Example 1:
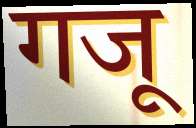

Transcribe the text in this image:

गजू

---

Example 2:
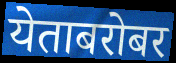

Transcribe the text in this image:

येताबरोबर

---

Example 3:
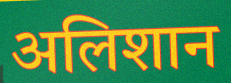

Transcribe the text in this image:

अलिशान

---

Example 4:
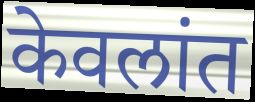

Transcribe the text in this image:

केवलांत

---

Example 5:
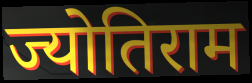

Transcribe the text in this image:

ज्योतिराम